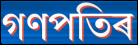
গণপতিৰ